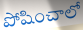
పోషించాలో